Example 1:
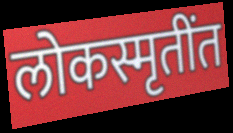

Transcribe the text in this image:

लोकस्मृतींत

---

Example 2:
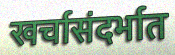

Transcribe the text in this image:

खर्चासंदर्भात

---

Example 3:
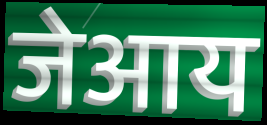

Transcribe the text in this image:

जेआय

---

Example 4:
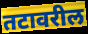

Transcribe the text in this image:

तटावरील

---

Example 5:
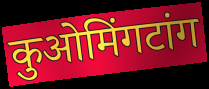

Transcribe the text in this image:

कुओमिंगटांग